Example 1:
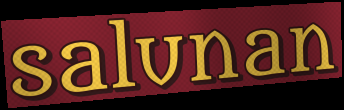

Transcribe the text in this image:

salunan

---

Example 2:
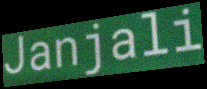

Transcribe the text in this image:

Janjali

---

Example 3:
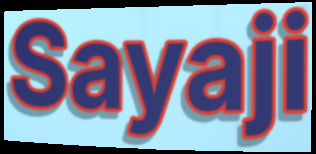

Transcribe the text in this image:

Sayaji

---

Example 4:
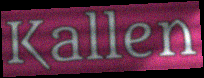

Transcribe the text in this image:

Kallen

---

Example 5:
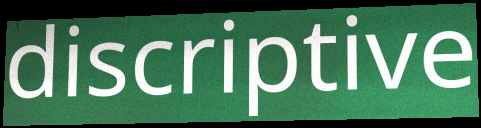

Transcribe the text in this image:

discriptive